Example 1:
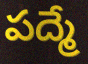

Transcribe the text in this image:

పద్మే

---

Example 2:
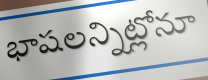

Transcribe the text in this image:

భాషలన్నిట్లోనూ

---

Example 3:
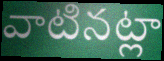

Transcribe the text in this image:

వాటినట్లా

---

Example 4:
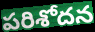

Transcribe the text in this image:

పరిశోదన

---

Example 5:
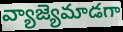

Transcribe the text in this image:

వ్యాజ్యెమాడగా